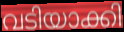
വടിയാക്കി